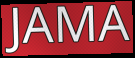
JAMA